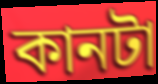
কানটা